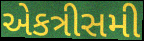
એકત્રીસમી